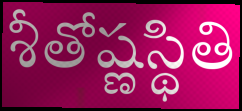
శీతోష్ణస్థితి